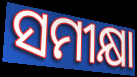
ସମୀକ୍ଷା